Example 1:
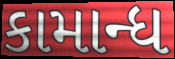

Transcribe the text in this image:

કામાન્ધ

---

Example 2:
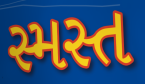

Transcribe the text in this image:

સ્મસ્ત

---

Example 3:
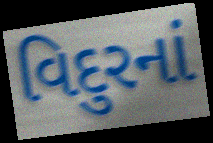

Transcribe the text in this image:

વિદુરનાં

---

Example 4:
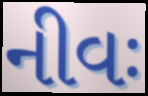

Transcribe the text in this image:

નીવઃ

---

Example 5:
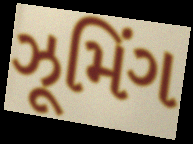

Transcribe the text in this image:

ઝૂમિંગ